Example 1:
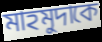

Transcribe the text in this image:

মাহমুদাকে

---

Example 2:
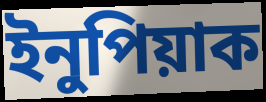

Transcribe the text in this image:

ইনুপিয়াক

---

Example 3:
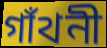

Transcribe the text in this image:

গাঁথনী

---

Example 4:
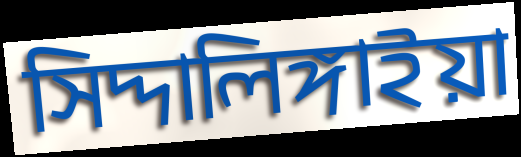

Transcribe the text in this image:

সিদ্দালিঙ্গাইয়া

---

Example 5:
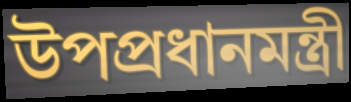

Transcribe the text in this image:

উপপ্রধানমন্ত্রী